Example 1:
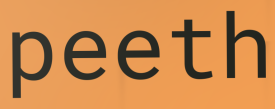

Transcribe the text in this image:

peeth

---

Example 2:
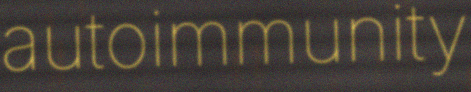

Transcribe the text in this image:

autoimmunity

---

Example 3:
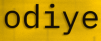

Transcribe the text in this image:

odiye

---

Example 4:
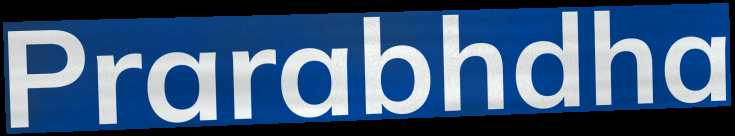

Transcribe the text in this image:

Prarabhdha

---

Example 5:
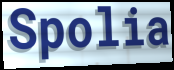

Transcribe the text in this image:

Spolia